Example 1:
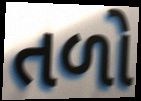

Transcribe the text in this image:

તળો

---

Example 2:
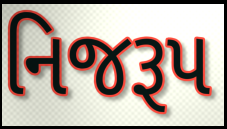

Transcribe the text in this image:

નિજરૂપ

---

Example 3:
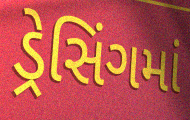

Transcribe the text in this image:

ડ્રેસિંગમાં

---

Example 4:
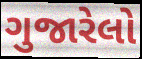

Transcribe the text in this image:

ગુજારેલો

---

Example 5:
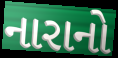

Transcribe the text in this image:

નારાનો